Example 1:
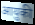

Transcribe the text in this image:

आयुकी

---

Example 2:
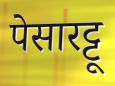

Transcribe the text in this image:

पेसारट्टू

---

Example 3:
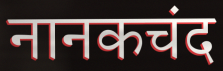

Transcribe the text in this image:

नानकचंद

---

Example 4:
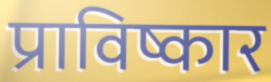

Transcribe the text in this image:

प्राविष्कार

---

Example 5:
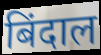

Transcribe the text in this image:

बिंदाल